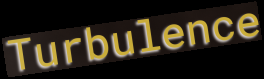
Turbulence